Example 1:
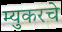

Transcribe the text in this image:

म्युकरचे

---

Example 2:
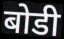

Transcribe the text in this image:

बोडी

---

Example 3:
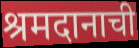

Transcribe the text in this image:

श्रमदानाची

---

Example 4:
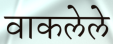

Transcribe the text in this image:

वाकलेले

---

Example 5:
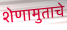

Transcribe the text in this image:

शेणामुताचे